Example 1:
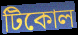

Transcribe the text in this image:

টিকোল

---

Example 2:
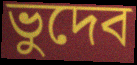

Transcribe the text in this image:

ভুদেব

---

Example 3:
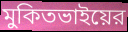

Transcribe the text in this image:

মুকিতভাইয়ের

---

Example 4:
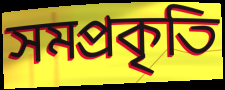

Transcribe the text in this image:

সমপ্রকৃতি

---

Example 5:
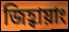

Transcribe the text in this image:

জিহ্বায়াং